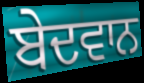
ਬੇਦਵਾਨ